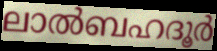
ലാൽബഹദൂർ